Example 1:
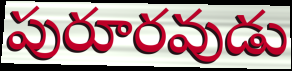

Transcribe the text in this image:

పురూరవుడు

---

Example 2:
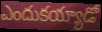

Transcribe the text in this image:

ఎందుకయ్యాడో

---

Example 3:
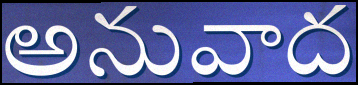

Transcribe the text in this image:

అనువాద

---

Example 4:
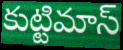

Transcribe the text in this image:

కుట్టిమాస్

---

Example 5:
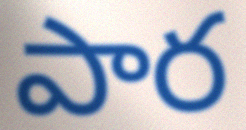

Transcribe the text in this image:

పార